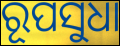
ରୂପସୁଧା